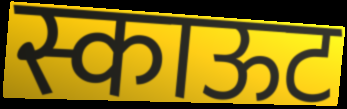
स्काऊट